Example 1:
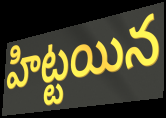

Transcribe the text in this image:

హిట్టయిన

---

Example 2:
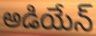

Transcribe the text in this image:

అడియేన్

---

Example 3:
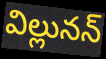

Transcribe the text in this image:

విల్లునన్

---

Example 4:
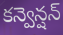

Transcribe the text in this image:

కన్వెన్షన్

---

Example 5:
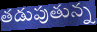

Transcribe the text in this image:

తడుపుతున్న